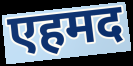
एहमद